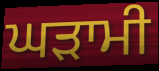
ਘੜਾਮੀ